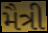
મૈત્રી